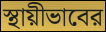
স্থায়ীভাবের